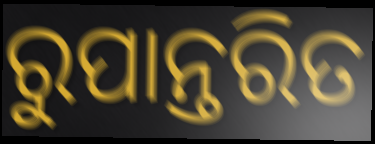
ରୁପାନ୍ତରିତ